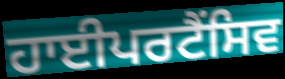
ਹਾਈਪਰਟੈਂਸਿਵ